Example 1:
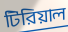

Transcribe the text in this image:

টিরিয়াল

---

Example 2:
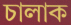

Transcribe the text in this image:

চালাক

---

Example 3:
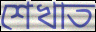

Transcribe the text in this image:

শেখাত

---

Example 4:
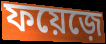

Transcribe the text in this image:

ফয়েজ়ে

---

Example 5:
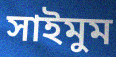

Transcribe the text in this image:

সাইমুম